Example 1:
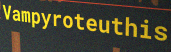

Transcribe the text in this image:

Vampyroteuthis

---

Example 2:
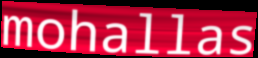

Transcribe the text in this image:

mohallas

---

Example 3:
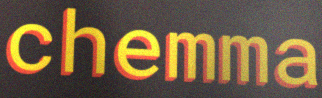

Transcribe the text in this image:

chemma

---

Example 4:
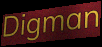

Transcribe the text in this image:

Digman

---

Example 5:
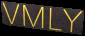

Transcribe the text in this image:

VMLY